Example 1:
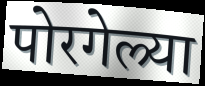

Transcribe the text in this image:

पोरगेल्या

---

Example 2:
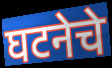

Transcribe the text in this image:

घटनेचे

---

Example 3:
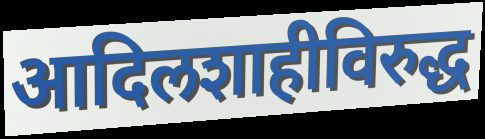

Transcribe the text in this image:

आदिलशाहीविरुद्ध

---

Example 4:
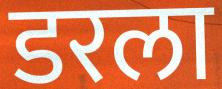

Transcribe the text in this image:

डरला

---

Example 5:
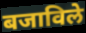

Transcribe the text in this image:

बजाविले